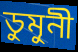
ডুমুনী